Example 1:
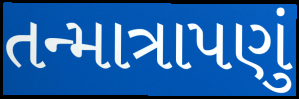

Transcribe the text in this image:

તન્માત્રાપણું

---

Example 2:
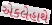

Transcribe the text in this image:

એકલેહાથે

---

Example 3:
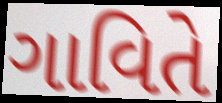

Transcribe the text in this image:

ગાવિતે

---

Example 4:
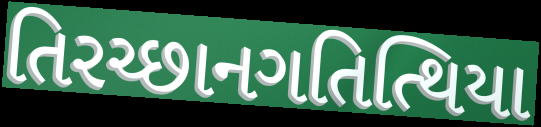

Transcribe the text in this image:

તિરચ્છાનગતિત્થિયા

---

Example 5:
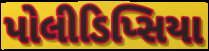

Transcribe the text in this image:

પોલીડિપ્સિયા